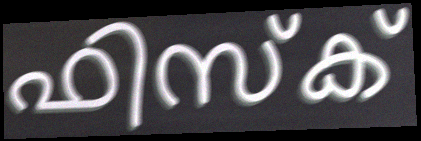
ഫിസ്ക്